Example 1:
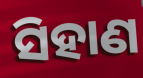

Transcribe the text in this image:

ସିହାଣ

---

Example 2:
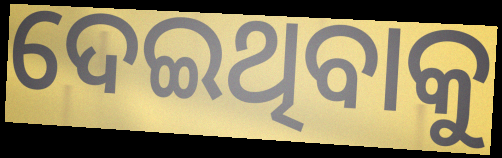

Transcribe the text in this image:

ଦେଇଥିବାକୁ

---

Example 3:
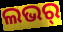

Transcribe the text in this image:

ଲଭର୍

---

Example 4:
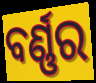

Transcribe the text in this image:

ବର୍ଣ୍ଣର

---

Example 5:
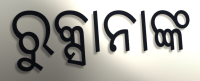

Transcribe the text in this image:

ରୁକ୍ସାନାଙ୍କ